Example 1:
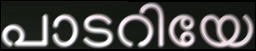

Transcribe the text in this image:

പാടറിയേ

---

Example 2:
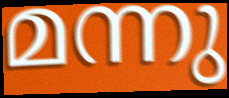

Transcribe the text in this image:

മന്നു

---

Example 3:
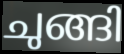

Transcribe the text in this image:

ചുങ്ങി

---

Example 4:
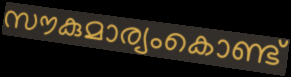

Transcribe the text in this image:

സൗകുമാര്യംകൊണ്ട്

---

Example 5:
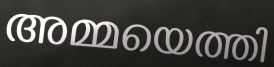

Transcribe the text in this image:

അമ്മയെത്തി